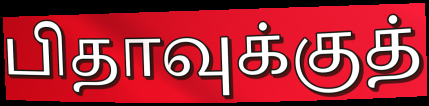
பிதாவுக்குத்